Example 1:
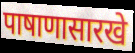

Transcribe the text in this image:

पाषाणासारखे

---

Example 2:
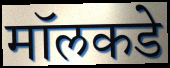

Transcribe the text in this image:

मॉलकडे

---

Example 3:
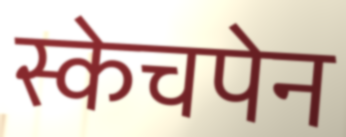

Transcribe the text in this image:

स्केचपेन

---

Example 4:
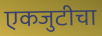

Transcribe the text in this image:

एकजुटीचा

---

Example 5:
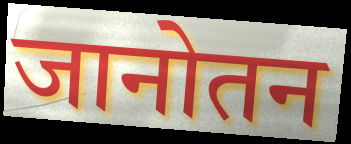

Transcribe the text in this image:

जानोतन